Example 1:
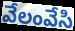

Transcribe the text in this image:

వేలంవేసి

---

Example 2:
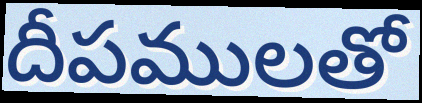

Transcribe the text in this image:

దీపములతో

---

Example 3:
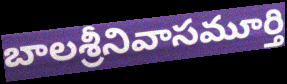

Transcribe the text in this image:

బాలశ్రీనివాసమూర్తి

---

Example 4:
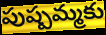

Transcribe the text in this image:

పుష్పమ్మకు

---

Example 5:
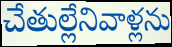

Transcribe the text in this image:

చేతుల్లేనివాళ్లను